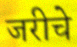
जरीचे